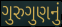
ગુરુગુણનું